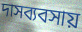
দাসব্যবসায়